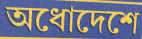
অধোদেশে